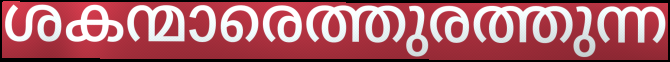
ശകന്മാരെത്തുരത്തുന്ന